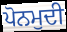
ਪੋਨਮੁਦੀ